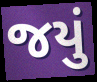
જયું